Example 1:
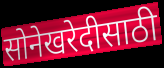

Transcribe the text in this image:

सोनेखरेदीसाठी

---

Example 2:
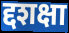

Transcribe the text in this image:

द्दशक्षा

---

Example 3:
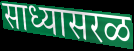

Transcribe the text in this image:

साध्यासरळ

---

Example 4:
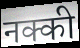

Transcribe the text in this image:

नक्की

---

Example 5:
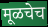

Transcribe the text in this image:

मूळचेच